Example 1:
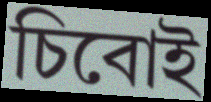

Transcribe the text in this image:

চিবোই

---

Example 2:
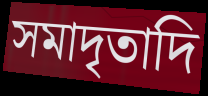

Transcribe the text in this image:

সমাদৃতাদি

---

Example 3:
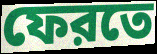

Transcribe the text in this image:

ফেরতে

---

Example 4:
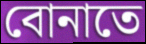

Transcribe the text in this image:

বোনাতে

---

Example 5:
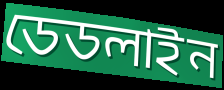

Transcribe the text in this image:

ডেডলাইন